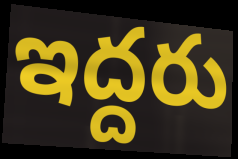
ఇద్దరు